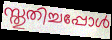
സ്തുതിച്ചപ്പോൾ